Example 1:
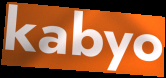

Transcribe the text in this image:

kabyo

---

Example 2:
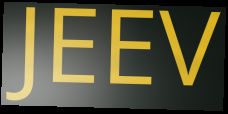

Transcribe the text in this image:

JEEV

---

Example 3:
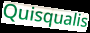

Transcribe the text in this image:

Quisqualis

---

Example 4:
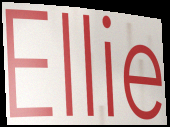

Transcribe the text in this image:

Ellie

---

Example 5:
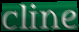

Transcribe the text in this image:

cline